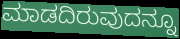
ಮಾಡದಿರುವುದನ್ನೂ